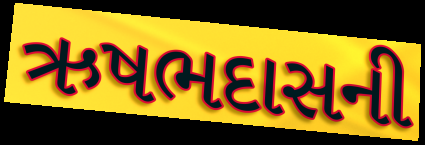
ઋષભદાસની